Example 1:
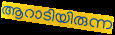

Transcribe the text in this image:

ആറാടിയിരുന്ന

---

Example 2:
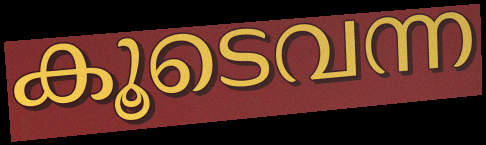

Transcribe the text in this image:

കൂടെവന്ന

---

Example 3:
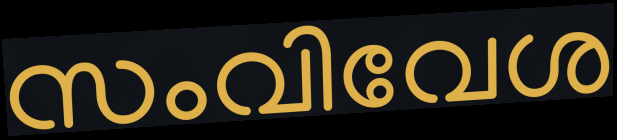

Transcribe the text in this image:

സംവിവേശ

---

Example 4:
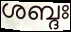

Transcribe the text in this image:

ശബ്ദഃ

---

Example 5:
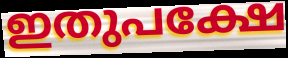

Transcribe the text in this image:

ഇതുപക്ഷേ